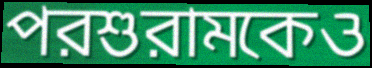
পরশুরামকেও